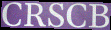
CRSCB